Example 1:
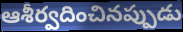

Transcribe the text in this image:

ఆశీర్వదించినప్పుడు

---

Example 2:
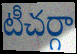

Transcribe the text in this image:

టీచర్గా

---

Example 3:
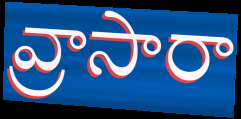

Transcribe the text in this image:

వ్రాసారా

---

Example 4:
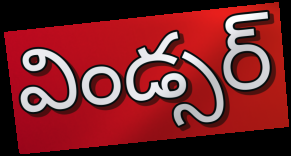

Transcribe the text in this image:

విండ్సర్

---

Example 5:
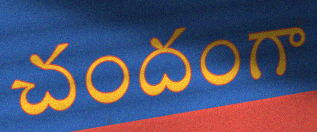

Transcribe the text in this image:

చందంగా